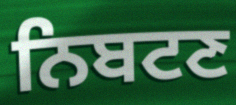
ਨਿਬਟਣ